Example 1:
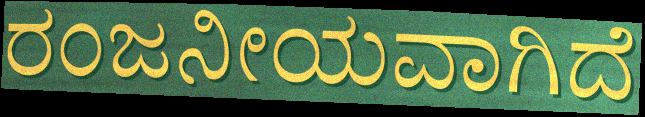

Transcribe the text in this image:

ರಂಜನೀಯವಾಗಿದೆ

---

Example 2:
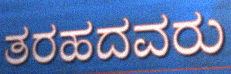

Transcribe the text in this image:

ತರಹದವರು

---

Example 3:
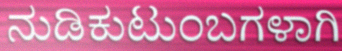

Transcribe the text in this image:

ನುಡಿಕುಟುಂಬಗಳಾಗಿ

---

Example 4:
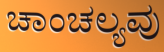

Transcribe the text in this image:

ಚಾಂಚಲ್ಯವು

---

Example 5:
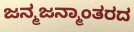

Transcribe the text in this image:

ಜನ್ಮಜನ್ಮಾಂತರದ